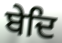
ਬੇਦਿ